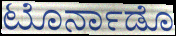
ಟೊರ್ನಾಡೊ